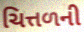
ચિત્તળની